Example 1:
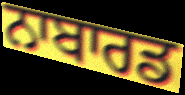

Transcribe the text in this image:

ਨਾਬਾਰਡ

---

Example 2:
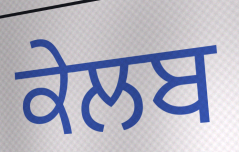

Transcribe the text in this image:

ਕੇਲਬ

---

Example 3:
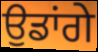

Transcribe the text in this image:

ਉਡਾਂਗੇ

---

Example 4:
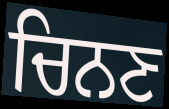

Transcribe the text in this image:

ਚਿਨਣ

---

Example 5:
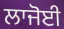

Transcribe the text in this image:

ਲਾਜੋਈ